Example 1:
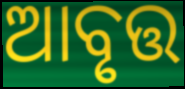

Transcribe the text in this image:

ଆବୃତ୍ତ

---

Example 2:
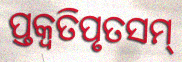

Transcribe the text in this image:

ପ୍ତକ୍ଵତିପୃତସମ୍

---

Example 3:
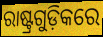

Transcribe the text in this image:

ରାଷ୍ଟ୍ରଗୁଡ଼ିକରେ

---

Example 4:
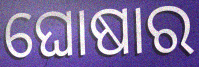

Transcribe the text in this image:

ଘୋଷାର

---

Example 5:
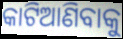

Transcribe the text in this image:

କାଟିଆଣିବାକୁ